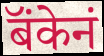
बॅंकेनं